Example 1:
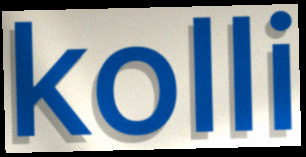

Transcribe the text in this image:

kolli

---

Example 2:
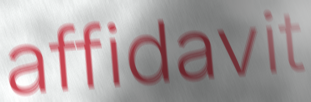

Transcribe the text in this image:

affidavit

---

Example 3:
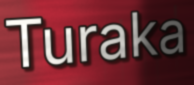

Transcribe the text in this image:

Turaka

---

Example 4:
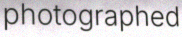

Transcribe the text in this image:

photographed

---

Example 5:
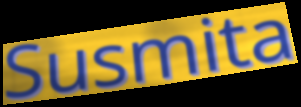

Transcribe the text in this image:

Susmita